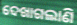
ଦେଖାଗଲାଣି